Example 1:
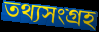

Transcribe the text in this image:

তথ্যসংগ্ৰহ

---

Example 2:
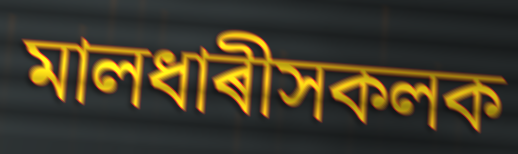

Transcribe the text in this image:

মালধাৰীসকলক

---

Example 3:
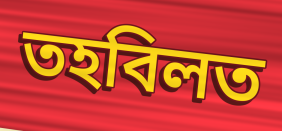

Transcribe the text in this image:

তহবিলত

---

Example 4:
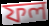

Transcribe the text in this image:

ফল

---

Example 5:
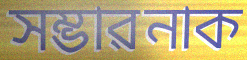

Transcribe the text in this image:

সম্ভাৱনাক